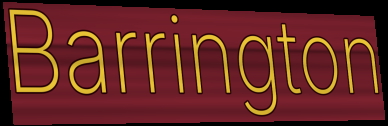
Barrington